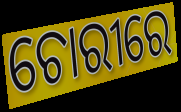
ଚୋରୀରେ